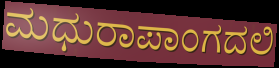
ಮಧುರಾಪಾಂಗದಲಿ